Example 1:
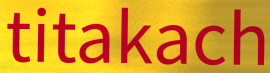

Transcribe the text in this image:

titakach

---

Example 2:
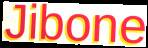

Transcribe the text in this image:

Jibone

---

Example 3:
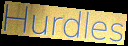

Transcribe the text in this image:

Hurdles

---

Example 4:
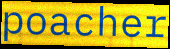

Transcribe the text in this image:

poacher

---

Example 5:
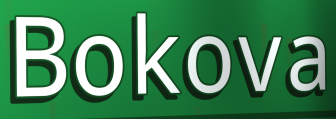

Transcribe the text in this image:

Bokova